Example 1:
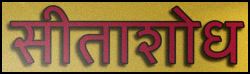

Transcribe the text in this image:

सीताशोध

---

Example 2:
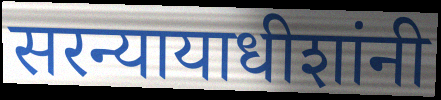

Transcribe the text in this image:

सरन्यायाधीशांनी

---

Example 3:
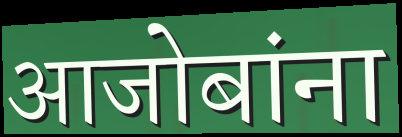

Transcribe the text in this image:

आजोबांना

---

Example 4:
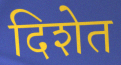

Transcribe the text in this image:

दिशेत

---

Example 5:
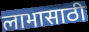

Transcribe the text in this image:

लाभासाठी